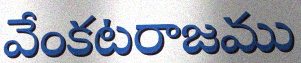
వేంకటరాజము